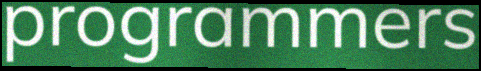
programmers